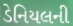
ડેનિયલની